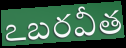
ఽబరవీత